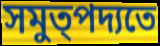
সমুত্পদ্যতে